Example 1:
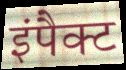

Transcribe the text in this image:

इंपैक्ट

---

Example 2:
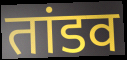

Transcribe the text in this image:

तांडव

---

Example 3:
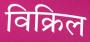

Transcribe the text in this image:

विक्रिल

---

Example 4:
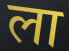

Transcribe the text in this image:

ला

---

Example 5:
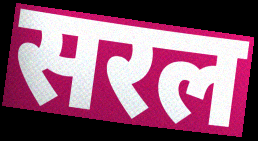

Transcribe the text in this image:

सरल